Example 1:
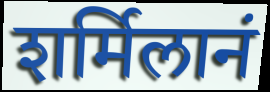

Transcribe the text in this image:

शर्मिलानं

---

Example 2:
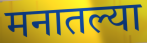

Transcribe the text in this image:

मनातल्या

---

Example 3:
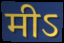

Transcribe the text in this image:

मीऽ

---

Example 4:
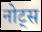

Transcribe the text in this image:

नोट्‌स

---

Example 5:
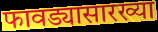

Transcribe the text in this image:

फावड्यासारख्या